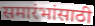
समारंभांसाठी